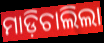
ମାଡ଼ିଚାଲିଲା